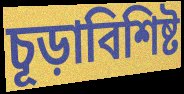
চূড়াবিশিষ্ট